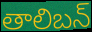
తాలిబన్